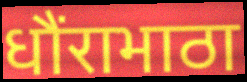
धौंराभाठा